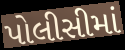
પોલીસીમાં